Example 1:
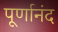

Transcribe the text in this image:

पूर्णानंद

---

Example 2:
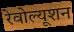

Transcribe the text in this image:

रेवोल्यूशन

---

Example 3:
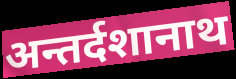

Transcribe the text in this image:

अन्तर्दशानाथ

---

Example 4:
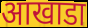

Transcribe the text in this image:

आखाडा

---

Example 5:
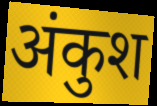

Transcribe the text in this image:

अंकुश